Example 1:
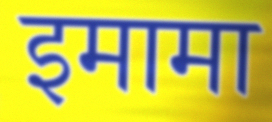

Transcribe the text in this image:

इमामा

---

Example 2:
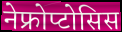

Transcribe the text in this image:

नेफ्रोप्टोसिस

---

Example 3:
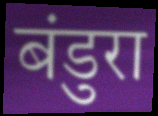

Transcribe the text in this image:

बंडुरा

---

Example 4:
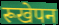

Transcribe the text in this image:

रूखेपन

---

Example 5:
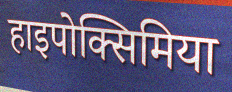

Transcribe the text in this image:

हाइपोक्सिमिया